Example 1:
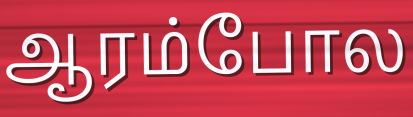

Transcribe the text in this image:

ஆரம்போல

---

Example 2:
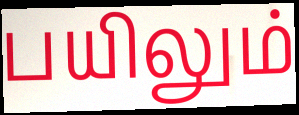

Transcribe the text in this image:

பயிலும்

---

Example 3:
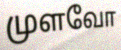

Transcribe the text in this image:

முளவோ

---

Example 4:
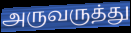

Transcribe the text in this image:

அருவருத்து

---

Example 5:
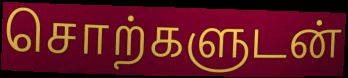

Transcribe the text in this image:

சொற்களுடன்